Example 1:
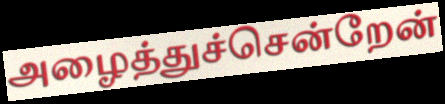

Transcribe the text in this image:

அழைத்துச்சென்றேன்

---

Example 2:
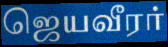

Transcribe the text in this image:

ஜெயவீரர்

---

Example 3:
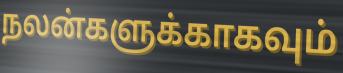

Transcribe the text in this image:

நலன்களுக்காகவும்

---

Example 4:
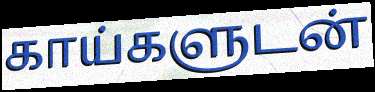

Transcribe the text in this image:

காய்களுடன்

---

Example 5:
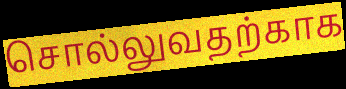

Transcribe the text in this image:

சொல்லுவதற்காக